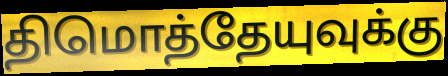
திமொத்தேயுவுக்கு